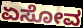
ಏಸೋವ